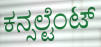
ಕನ್ಸಲ್ಟೆಂಟ್